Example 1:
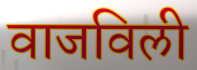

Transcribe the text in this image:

वाजविली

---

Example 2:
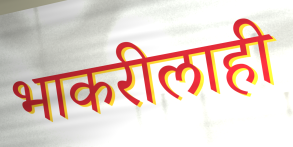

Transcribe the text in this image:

भाकरीलाही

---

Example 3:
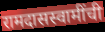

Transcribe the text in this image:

रामदासस्वामींची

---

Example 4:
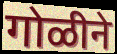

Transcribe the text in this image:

गोळीने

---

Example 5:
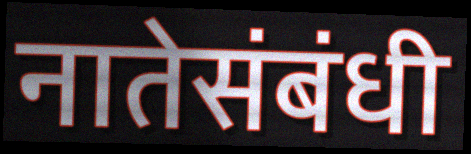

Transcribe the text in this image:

नातेसंबंधी